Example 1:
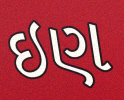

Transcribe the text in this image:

ઇણ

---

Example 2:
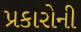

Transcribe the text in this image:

પ્રકારોની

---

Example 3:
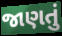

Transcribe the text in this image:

જાણતું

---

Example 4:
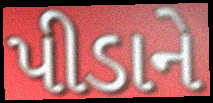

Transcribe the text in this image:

પીડાને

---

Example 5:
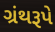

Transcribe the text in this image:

ગ્રંથરૂપે